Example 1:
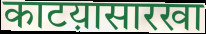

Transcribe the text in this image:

काटय़ासारखा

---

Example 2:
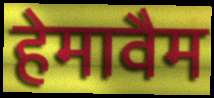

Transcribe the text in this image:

हेमावैम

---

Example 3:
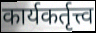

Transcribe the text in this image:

कार्यकर्तृत्त्व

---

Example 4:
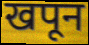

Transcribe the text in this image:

खपून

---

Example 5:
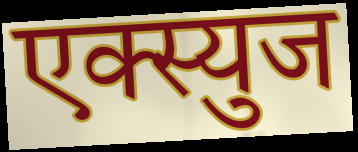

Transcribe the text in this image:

एक्स्युज